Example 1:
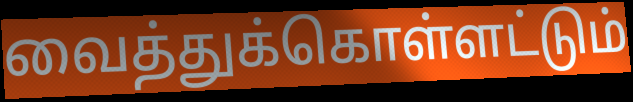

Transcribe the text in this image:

வைத்துக்கொள்ளட்டும்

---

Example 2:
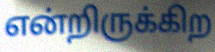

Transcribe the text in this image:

என்றிருக்கிற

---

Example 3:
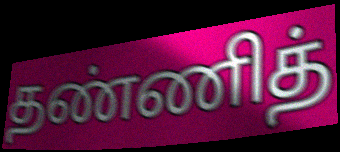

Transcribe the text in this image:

தண்ணித்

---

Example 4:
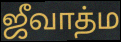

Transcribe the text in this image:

ஜீவாத்ம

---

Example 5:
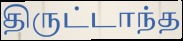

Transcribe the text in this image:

திருட்டாந்த